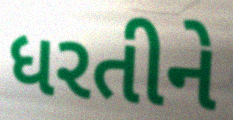
ધરતીને